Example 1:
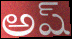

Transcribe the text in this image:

అష్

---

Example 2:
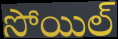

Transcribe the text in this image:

సోయిల్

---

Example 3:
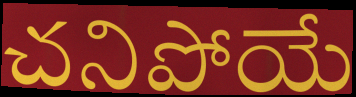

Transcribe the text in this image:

చనిపోయే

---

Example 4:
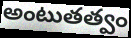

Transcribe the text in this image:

అంటుతత్వం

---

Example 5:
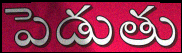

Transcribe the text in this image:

పెడుతు